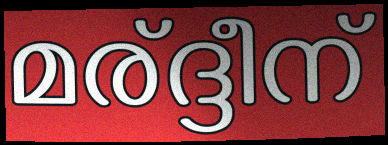
മര്ദ്ദീന്